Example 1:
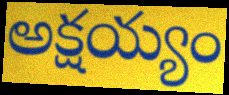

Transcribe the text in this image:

అక్షయ్యం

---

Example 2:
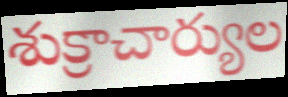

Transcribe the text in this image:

శుక్రాచార్యుల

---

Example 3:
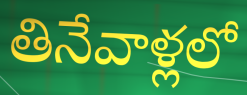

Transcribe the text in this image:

తినేవాళ్లలో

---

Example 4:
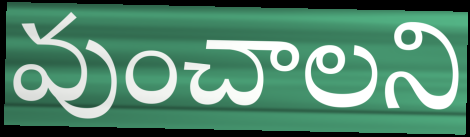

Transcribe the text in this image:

వుంచాలని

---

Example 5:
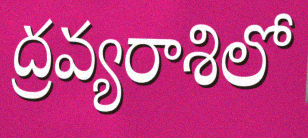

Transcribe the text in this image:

ద్రవ్యరాశిలో